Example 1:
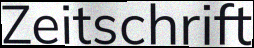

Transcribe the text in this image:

Zeitschrift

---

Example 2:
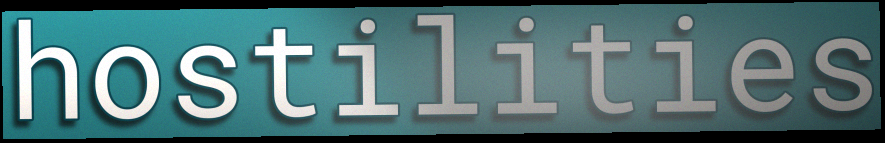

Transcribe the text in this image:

hostilities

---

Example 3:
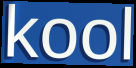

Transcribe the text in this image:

kool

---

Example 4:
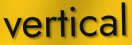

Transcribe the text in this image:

vertical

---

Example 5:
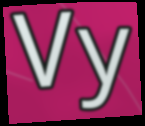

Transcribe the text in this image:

Vy